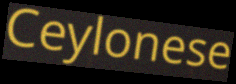
Ceylonese